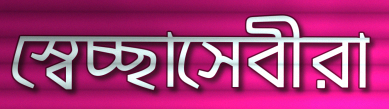
স্বেচ্ছাসেবীরা